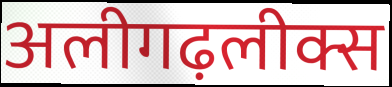
अलीगढ़लीक्स